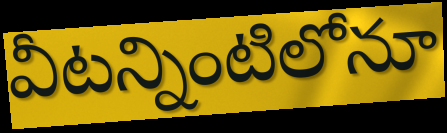
వీటన్నింటిలోనూ